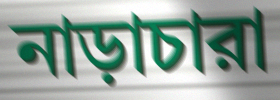
নাড়াচারা